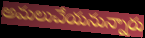
అమలుచేయనున్నారు